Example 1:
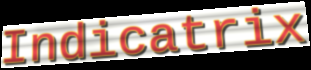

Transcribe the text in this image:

Indicatrix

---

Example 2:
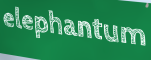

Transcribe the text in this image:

elephantum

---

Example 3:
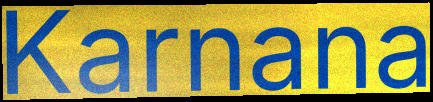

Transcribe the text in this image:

Karnana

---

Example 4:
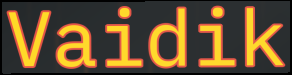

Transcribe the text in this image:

Vaidik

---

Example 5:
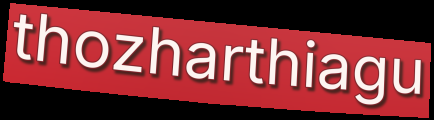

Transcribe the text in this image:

thozharthiagu